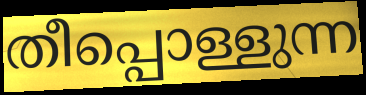
തീപ്പൊള്ളുന്ന